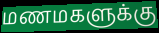
மணமகளுக்கு